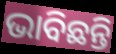
ଭାବିଛନ୍ତି